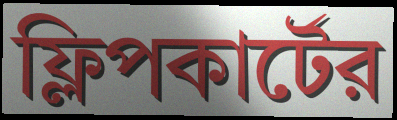
ফ্লিপকার্টের